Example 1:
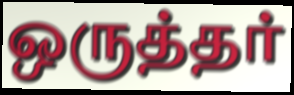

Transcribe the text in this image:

ஒருத்தர்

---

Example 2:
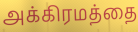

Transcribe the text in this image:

அக்கிரமத்தை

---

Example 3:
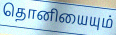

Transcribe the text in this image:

தொனியையும்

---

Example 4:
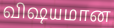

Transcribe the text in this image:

விஷயமான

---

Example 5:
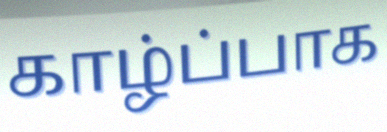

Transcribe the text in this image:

காழ்ப்பாக